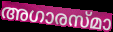
അഗാരസ്മാ